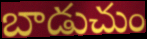
బాడుచుం